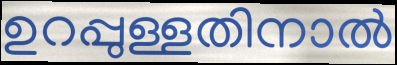
ഉറപ്പുള്ളതിനാൽ